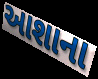
આશાના